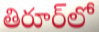
తిరూర్‌లో